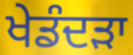
ਖੇਡੰਦੜਾ